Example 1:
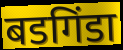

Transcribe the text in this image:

बडगिंडा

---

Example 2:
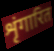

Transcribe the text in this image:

शृंगारित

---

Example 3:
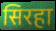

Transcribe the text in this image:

सिरहा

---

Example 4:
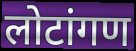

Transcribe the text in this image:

लोटांगण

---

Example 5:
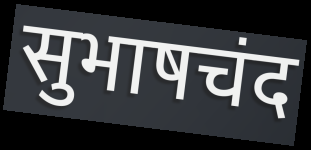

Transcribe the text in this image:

सुभाषचंद